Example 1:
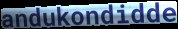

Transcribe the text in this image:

andukondidde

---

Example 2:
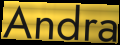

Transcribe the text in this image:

Andra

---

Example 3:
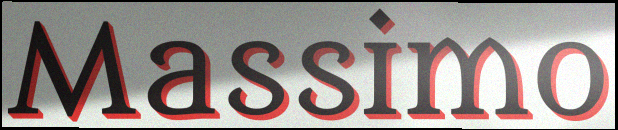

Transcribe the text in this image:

Massimo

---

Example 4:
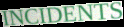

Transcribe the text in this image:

INCIDENTS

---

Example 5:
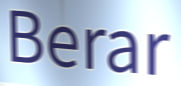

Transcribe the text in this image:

Berar